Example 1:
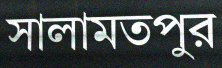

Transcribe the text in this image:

সালামতপুর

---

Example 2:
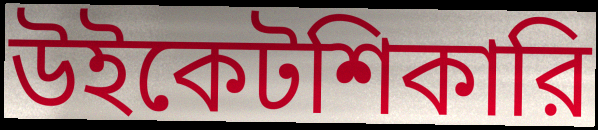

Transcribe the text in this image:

উইকেটশিকারি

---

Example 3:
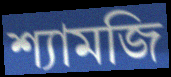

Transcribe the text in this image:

শ্যামজি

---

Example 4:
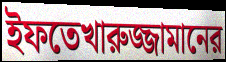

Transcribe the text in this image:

ইফতেখারুজ্জামানের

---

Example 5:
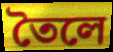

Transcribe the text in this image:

তৈলে